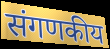
संगणकीय